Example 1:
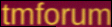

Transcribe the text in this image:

tmforum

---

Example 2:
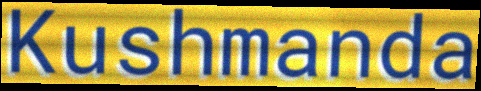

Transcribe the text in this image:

Kushmanda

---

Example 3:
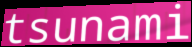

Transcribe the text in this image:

tsunami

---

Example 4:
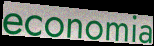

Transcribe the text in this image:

economia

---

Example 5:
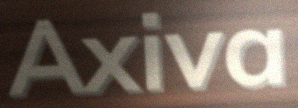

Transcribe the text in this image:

Axiva